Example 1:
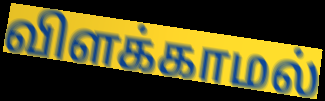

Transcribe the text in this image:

விளக்காமல்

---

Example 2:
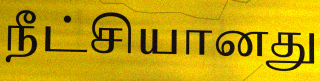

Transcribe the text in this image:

நீட்சியானது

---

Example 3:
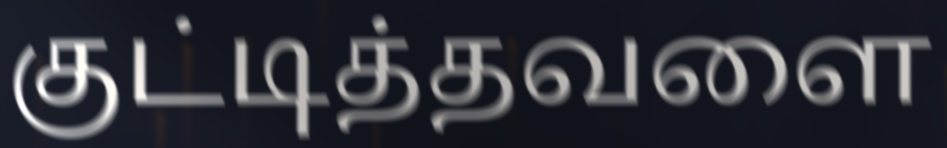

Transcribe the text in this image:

குட்டித்தவளை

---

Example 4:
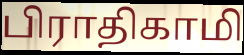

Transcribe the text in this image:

பிராதிகாமி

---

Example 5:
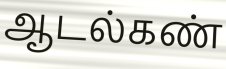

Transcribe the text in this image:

ஆடல்கண்